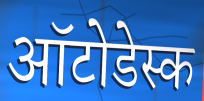
ऑटोडेस्क